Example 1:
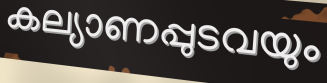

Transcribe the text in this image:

കല്യാണപ്പുടവയും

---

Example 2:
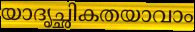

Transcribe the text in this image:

യാദൃച്ഛികതയാവാം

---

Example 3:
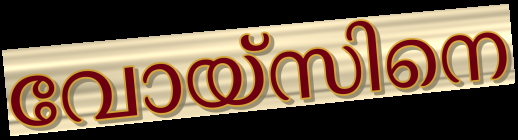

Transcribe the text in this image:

വോയ്സിനെ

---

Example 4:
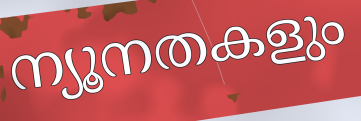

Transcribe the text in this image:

ന്യൂനതകളും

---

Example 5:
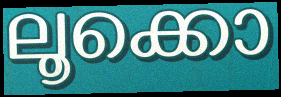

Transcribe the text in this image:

ലൂക്കൊ